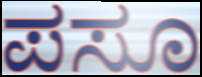
ಪಸೂ